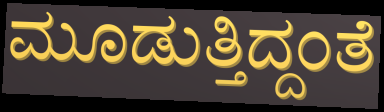
ಮೂಡುತ್ತಿದ್ದಂತೆ